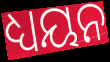
ଧ୍ୟୟନ